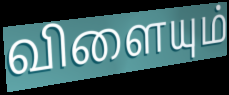
விளையும்